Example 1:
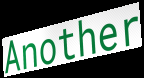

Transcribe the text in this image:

Another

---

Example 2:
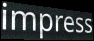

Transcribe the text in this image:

impress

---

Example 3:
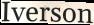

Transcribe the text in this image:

Iverson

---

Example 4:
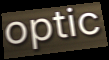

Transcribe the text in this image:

optic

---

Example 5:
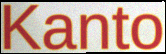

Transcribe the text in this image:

Kanto